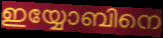
ഇയ്യോബിനെ